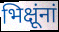
भिक्षूंनां